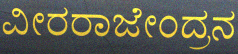
ವೀರರಾಜೇಂದ್ರನ